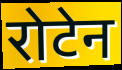
रोटेन